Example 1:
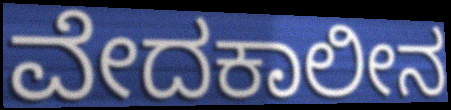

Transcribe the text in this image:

ವೇದಕಾಲೀನ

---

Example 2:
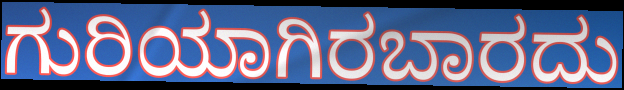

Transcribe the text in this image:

ಗುರಿಯಾಗಿರಬಾರದು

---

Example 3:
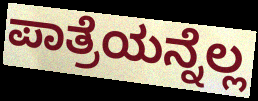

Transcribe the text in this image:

ಪಾತ್ರೆಯನ್ನೆಲ್ಲ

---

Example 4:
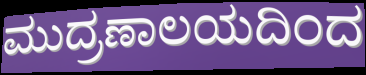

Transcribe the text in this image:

ಮುದ್ರಣಾಲಯದಿಂದ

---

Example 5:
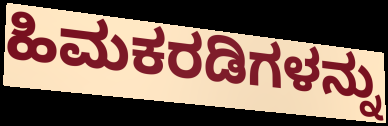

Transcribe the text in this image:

ಹಿಮಕರಡಿಗಳನ್ನು